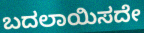
ಬದಲಾಯಿಸದೇ